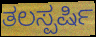
ತಲಸ್ಪರ್ಷಿ